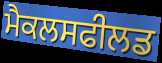
ਮੈਕਲਸਫੀਲਡ